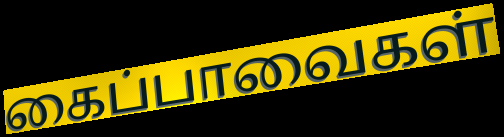
கைப்பாவைகள்